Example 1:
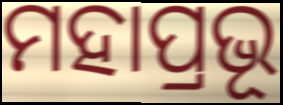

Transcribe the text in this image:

ମହାପ୍ରଭୂ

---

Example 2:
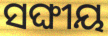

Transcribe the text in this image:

ସଙ୍ଘୀୟ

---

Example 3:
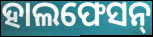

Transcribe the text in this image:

ହାଲଫେସନ୍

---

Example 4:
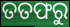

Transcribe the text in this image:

ତତଫରୁ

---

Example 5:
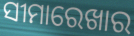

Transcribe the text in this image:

ସୀମାରେଖାର